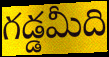
గడ్డమీది